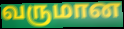
வருமான